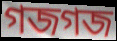
গজগজ